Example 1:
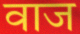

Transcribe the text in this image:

वाज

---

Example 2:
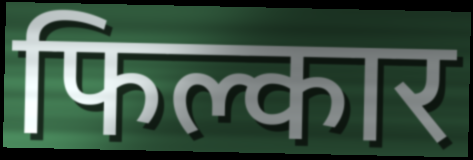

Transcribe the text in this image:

फिल्कार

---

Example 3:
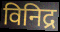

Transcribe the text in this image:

विनिद्र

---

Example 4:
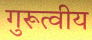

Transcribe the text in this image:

गुरूत्वीय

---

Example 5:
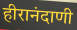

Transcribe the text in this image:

हीरानंदाणी